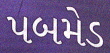
પબમેડ